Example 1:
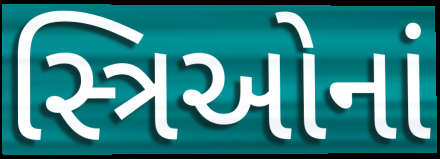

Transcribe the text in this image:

સ્ત્રિઓનાં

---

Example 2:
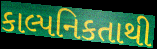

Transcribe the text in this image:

કાલ્પનિકતાથી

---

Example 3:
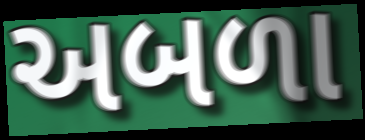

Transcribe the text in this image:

અબળા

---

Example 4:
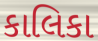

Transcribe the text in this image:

કાલિકા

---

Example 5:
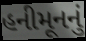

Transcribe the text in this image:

હનીમૂનનું